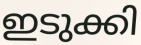
ഇടുക്കി